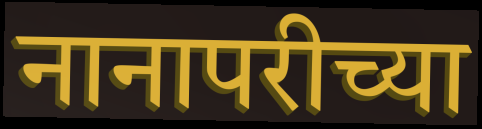
नानापरीच्या